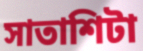
সাতাশিটা